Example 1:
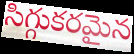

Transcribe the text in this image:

సిగ్గుకరమైన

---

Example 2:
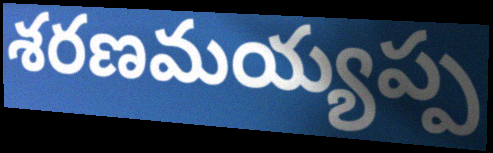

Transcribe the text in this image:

శరణమయ్యప్ప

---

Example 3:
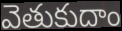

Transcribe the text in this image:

వెతుకుదాం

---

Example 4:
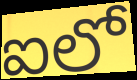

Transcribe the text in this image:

ఐలో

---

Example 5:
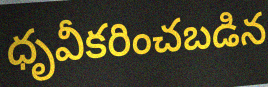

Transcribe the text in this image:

ధృవీకరించబడిన